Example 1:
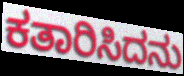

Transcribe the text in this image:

ಕತಾರಿಸಿದನು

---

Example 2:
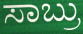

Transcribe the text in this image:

ಸಾಬ್ರು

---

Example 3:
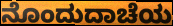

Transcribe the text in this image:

ನೊಂದುದಾಚೆಯ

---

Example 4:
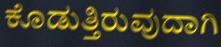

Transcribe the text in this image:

ಕೊಡುತ್ತಿರುವುದಾಗಿ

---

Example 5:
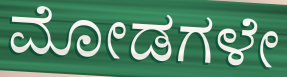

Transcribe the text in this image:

ಮೋಡಗಳೇ